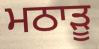
ਮਠਾੜੂ